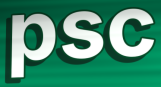
psc